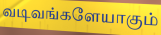
வடிவங்களேயாகும்